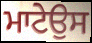
ਮਾਟੇਉਸ